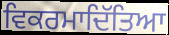
ਵਿਕਰਮਾਦਿੱਤਿਆ